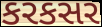
કરકસર